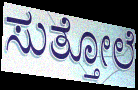
ಸುತ್ತೋಲೆ